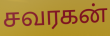
சவரகன்